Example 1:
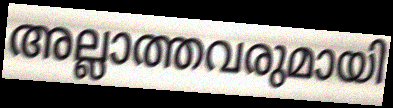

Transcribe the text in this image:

അല്ലാത്തവരുമായി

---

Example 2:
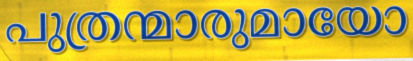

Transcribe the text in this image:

പുത്രന്മാരുമായോ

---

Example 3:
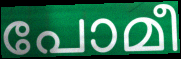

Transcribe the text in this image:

പോമീ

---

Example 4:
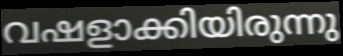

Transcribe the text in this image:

വഷളാക്കിയിരുന്നു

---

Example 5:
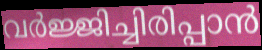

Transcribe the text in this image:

വർജ്ജിച്ചിരിപ്പാൻ